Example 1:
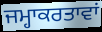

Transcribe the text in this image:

ਜਮ੍ਹਾਕਰਤਾਵਾਂ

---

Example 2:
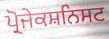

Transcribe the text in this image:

ਪ੍ਰੋਜੇਕਸ਼ਨਿਸਟ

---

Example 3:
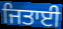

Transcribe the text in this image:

ਜਿਤਾਈ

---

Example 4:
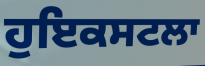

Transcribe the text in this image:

ਹੁਇਕਸਟਲਾ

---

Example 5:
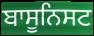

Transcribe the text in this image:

ਬਾਸੂਨਿਸਟ